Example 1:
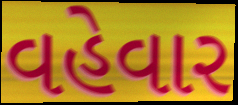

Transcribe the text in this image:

વહેવાર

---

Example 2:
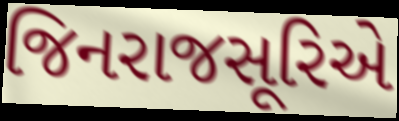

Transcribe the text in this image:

જિનરાજસૂરિએ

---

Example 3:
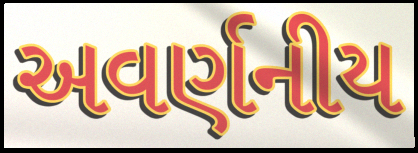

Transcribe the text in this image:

અવર્ણનીય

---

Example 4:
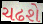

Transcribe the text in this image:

ચઢશે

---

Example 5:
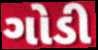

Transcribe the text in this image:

ગોડી